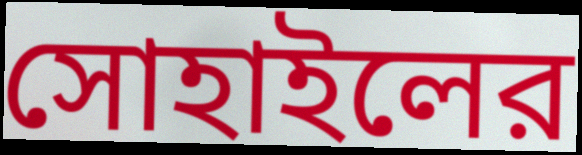
সোহাইলের